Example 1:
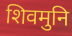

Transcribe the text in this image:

शिवमुनि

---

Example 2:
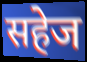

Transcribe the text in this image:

सहेज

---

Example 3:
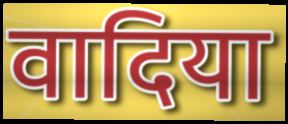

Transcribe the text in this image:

वादिया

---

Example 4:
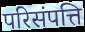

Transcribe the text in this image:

परिसंपत्ति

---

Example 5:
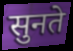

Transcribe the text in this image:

सुनते